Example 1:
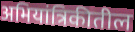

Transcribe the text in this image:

अभियांत्रिकीतील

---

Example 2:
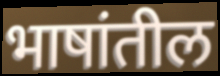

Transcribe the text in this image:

भाषांतील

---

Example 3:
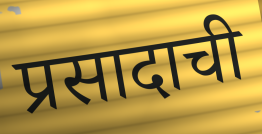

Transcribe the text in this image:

प्रसादाची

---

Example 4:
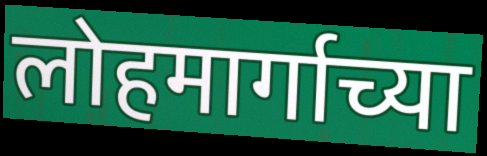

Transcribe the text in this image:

लोहमार्गाच्या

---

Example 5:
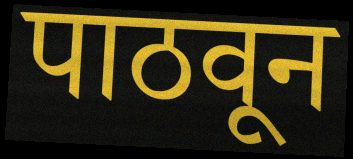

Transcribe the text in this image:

पाठवून